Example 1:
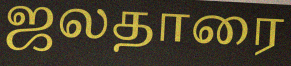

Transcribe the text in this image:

ஜலதாரை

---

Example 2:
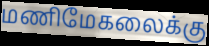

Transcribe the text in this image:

மணிமேகலைக்கு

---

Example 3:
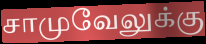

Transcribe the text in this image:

சாமுவேலுக்கு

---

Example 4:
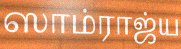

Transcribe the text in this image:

ஸாம்ராஜ்ய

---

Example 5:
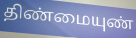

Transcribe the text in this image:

திண்மையுண்